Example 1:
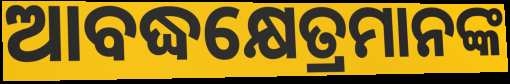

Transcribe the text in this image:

ଆବଦ୍ଧକ୍ଷେତ୍ରମାନଙ୍କ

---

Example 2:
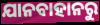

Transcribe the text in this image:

ଯାନବାହାନରୁ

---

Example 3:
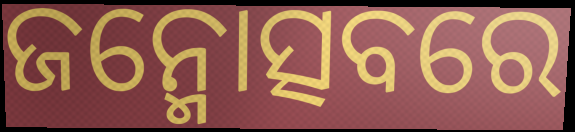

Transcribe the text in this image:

ଜନ୍ମୋତ୍ସବରେ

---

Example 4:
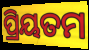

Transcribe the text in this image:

ପ୍ରିୟତମ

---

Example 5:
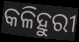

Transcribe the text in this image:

କଳିହୁରୀ